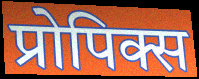
प्रोपिक्स